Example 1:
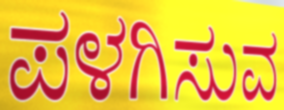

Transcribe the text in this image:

ಪಳಗಿಸುವ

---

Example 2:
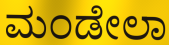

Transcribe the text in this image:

ಮಂಡೇಲಾ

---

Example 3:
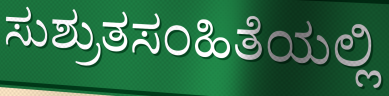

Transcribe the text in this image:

ಸುಶ್ರುತಸಂಹಿತೆಯಲ್ಲಿ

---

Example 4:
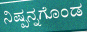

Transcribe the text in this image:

ನಿಷ್ಪನ್ನಗೊಂಡ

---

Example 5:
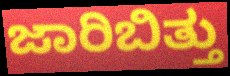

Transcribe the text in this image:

ಜಾರಿಬಿತ್ತು